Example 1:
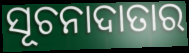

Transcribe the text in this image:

ସୂଚନାଦାତାର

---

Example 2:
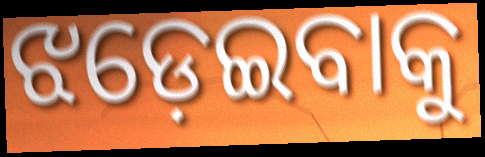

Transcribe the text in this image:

ଝଡ଼େଇବାକୁ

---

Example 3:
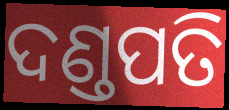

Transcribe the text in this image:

ଦଣ୍ଡପତି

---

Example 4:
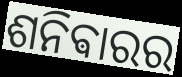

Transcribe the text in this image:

ଶନିଵାରର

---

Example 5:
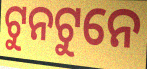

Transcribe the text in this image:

ଟୁନଟୁନେ